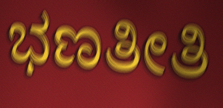
ಭಣತೀತಿ